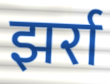
झर्रा